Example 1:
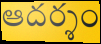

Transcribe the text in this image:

ఆదర్శం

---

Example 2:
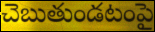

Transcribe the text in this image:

చెబుతుండటంపై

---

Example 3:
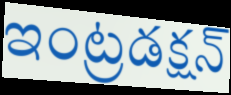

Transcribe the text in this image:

ఇంట్రడక్షన్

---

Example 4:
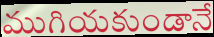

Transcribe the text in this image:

ముగియకుండానే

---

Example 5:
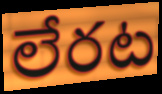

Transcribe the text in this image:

లేరట